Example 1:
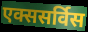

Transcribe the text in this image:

एक्ससर्विस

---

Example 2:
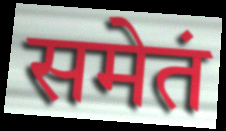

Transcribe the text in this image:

समेतं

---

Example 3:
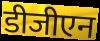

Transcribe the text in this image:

डीजीएन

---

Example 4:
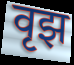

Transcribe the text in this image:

वृझ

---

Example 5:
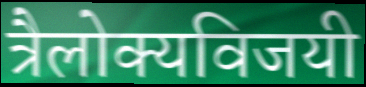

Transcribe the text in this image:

त्रैलोक्यविजयी